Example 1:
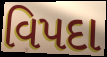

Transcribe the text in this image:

વિપદા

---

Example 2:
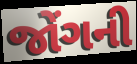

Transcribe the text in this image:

જોંગની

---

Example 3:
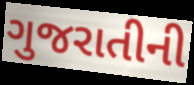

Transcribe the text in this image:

ગુજરાતીની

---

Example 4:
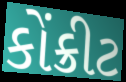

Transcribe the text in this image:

કોંક્રીટ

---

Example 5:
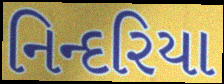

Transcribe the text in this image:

નિન્દરિયા